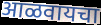
आळवायचा